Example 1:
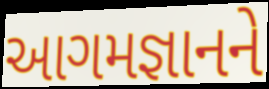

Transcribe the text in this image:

આગમજ્ઞાનને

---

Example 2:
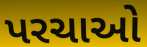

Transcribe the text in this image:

પરચાઓ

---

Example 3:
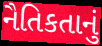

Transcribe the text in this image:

નૈતિકતાનું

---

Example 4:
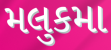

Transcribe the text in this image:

મલુકમા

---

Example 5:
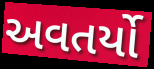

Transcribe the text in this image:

અવતર્યો